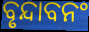
ବୃନ୍ଦାବନଂ